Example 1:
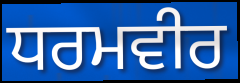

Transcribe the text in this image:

ਧਰਮਵੀਰ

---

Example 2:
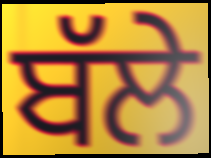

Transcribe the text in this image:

ਬੱਲੇ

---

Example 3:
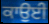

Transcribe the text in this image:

ਕਾਉਈ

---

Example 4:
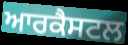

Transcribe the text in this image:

ਆਰਕੈਸਟਲ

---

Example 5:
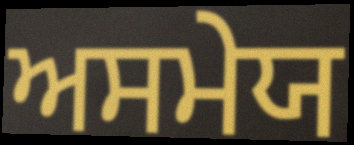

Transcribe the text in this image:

ਅਸਮੇਯ